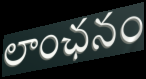
లాంఛనం